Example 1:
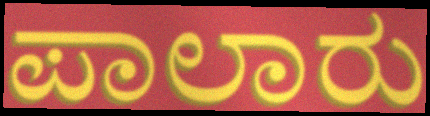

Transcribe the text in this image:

ಪಾಲಾರು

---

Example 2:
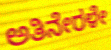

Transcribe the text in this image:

ಅತಿನೇರಳೇ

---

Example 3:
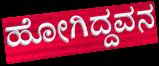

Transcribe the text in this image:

ಹೋಗಿದ್ದವನ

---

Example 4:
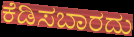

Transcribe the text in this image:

ಕೆಡಿಸಬಾರದು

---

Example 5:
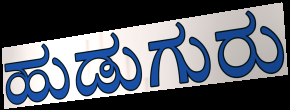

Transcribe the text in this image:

ಹುಡುಗುರು